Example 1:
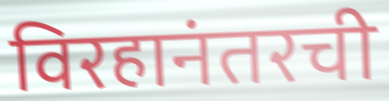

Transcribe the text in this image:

विरहानंतरची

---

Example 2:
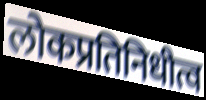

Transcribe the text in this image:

लोकप्रतिनिधीत्व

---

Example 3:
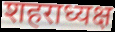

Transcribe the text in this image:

शहराध्यक्ष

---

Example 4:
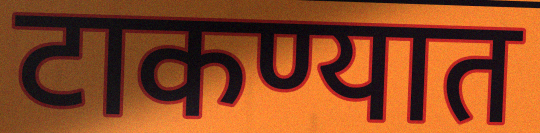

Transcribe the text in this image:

टाकण्यात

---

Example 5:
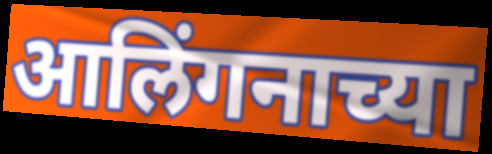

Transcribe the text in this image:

आलिंगनाच्या